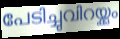
പേടിച്ചുവിറയ്ക്കും